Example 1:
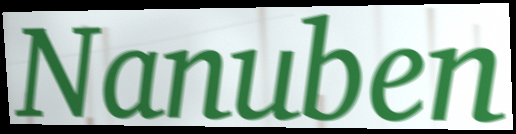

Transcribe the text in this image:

Nanuben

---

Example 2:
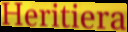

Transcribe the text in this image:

Heritiera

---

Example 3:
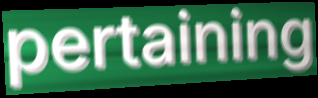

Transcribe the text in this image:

pertaining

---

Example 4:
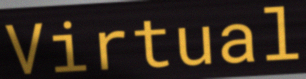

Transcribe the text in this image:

Virtual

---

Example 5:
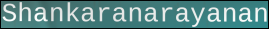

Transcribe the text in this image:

Shankaranarayanan